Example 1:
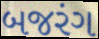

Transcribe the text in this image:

બજરંગ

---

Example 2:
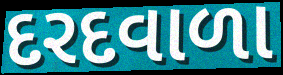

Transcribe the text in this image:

દરદવાળા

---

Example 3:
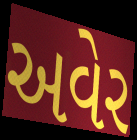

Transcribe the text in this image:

અવેર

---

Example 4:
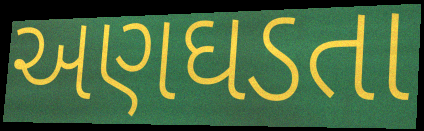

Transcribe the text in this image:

અણઘડતા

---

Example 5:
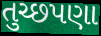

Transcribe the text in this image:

તુચ્છપણા